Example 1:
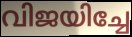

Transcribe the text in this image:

വിജയിച്ചേ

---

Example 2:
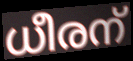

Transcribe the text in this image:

ധീരന്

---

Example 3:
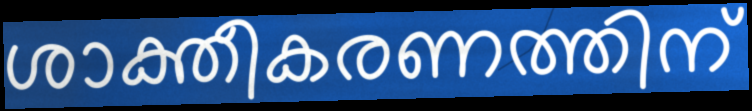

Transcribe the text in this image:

ശാക്തീകരണത്തിന്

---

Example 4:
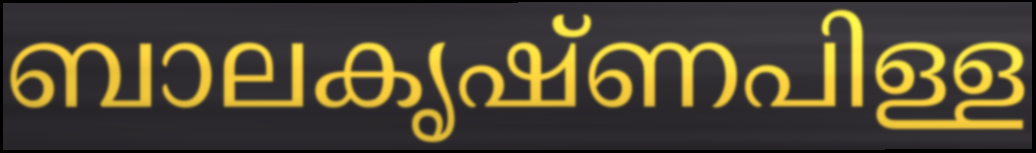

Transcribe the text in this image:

ബാലകൃഷ്ണപിള്ള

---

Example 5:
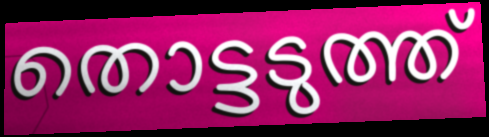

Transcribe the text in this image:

തൊട്ടടുത്ത്